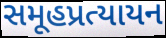
સમૂહપ્રત્યાયન